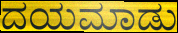
ದಯಮಾಡು